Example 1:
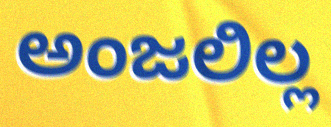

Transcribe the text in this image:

ಅಂಜಲಿಲ್ಲ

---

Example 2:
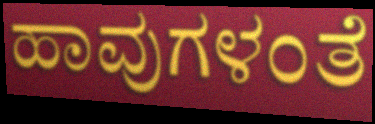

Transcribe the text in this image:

ಹಾವುಗಳಂತೆ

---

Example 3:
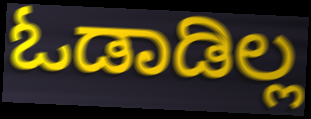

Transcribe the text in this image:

ಓಡಾಡಿಲ್ಲ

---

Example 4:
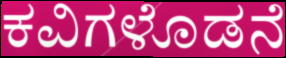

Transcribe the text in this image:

ಕವಿಗಳೊಡನೆ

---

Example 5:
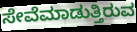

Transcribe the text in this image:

ಸೇವೆಮಾಡುತ್ತಿರುವ